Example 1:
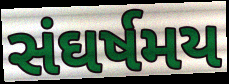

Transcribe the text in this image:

સંઘર્ષમય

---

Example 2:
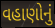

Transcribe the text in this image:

વહાણોનું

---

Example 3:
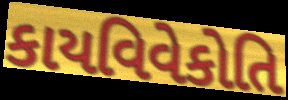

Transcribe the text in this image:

કાયવિવેકોતિ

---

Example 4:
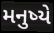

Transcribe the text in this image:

મનુષ્યે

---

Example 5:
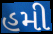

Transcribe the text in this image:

હમી